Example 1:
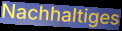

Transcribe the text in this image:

Nachhaltiges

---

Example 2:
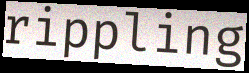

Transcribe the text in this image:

rippling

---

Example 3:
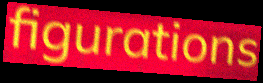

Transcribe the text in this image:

figurations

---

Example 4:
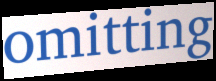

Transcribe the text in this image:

omitting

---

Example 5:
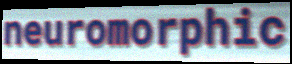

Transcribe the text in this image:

neuromorphic